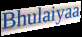
Bhulaiyaa